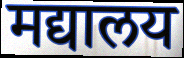
मद्यालय